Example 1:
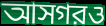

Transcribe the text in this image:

আসগরও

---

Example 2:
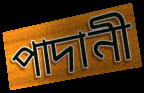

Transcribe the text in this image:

পাদানী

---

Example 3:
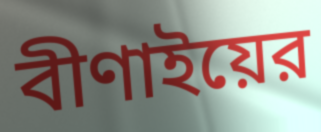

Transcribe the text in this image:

বীণাইয়ের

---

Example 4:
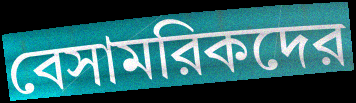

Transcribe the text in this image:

বেসামরিকদের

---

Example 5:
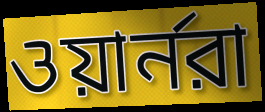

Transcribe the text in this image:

ওয়ার্নরা